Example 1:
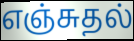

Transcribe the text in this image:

எஞ்சுதல்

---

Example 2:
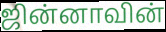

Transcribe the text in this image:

ஜின்னாவின்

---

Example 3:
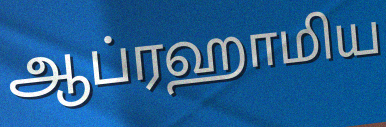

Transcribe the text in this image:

ஆப்ரஹாமிய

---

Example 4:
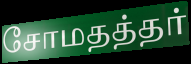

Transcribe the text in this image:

சோமதத்தர்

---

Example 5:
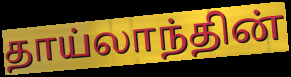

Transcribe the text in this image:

தாய்லாந்தின்